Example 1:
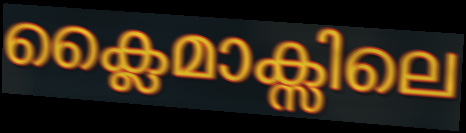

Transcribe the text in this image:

ക്ലൈമാക്സിലെ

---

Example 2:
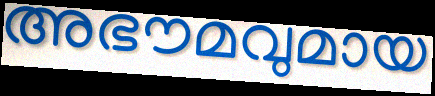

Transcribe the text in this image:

അഭൗമവുമായ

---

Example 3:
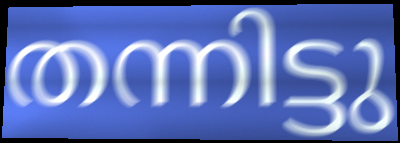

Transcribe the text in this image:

തന്നിട്ടു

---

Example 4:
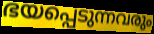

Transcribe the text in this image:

ഭയപ്പെടുന്നവരും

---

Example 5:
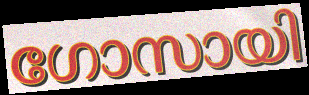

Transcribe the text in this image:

ഗോസായി